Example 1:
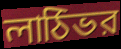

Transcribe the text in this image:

লাঠিভর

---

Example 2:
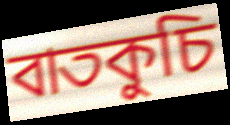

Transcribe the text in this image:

বাতকুচি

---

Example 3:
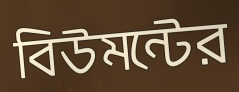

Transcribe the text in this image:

বিউমন্টের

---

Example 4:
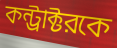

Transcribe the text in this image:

কন্ট্রাক্টরকে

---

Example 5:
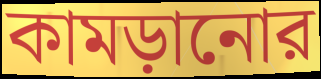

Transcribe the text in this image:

কামড়ানোর